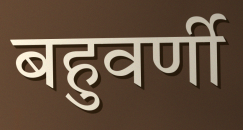
बहुवर्णी